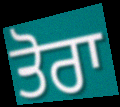
ਤੋਰਾ